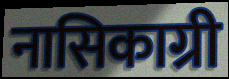
नासिकाग्री